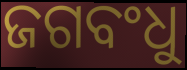
ଜଗବଂଧୁ